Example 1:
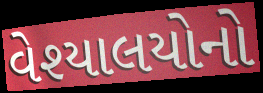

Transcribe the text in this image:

વેશ્યાલયોનો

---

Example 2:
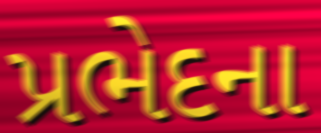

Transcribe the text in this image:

પ્રભેદના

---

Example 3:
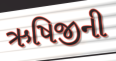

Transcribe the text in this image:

ઋષિજીની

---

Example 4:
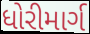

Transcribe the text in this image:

ધોરીમાર્ગ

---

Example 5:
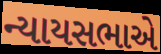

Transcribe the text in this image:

ન્યાયસભાએ